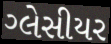
ગ્લેસીયર